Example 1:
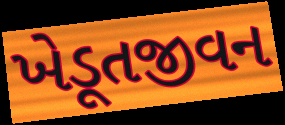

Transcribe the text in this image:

ખેડૂતજીવન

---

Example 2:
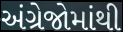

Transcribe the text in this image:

અંગ્રેજોમાંથી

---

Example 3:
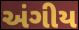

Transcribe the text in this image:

અંગીય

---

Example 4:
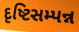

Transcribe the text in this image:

દૃષ્ટિસમ્પન્ન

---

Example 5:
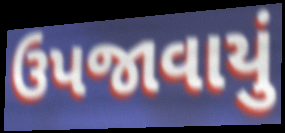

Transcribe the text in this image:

ઉપજાવાયું